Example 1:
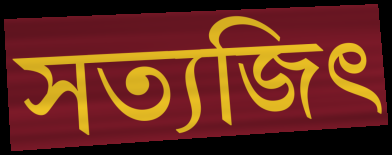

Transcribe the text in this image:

সত্যজিৎ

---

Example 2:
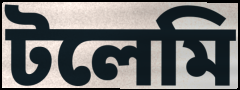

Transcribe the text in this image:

টলেমি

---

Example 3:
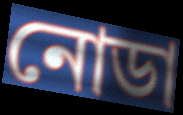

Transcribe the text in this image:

নোডা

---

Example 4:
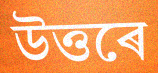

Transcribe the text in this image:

উত্তৰে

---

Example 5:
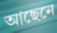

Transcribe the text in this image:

আছেনে